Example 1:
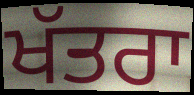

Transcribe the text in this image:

ਖੱਤਰਾ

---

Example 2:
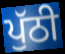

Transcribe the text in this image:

ਪੁੱਠੀ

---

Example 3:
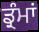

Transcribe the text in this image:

ਡ੍ਰੰਮਾਂ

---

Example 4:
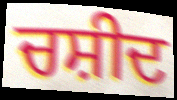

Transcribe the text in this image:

ਚਸ਼ੀਦ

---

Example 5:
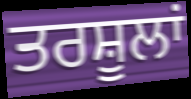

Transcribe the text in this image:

ਤਰਸ਼ੂਲਾਂ